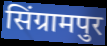
सिंग्रामपुर